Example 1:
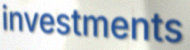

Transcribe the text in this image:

investments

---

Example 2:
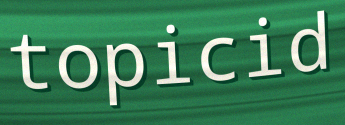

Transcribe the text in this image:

topicid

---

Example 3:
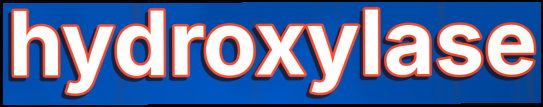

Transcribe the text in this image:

hydroxylase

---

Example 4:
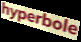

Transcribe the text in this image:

hyperbole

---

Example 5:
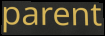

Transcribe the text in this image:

parent